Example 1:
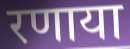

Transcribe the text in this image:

रणाया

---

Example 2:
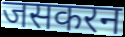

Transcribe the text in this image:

जसकरन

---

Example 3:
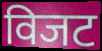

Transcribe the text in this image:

विजट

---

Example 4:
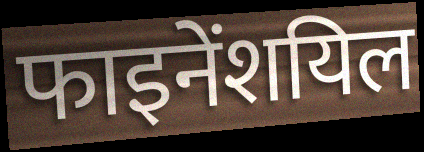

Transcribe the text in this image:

फाइनेंशयिल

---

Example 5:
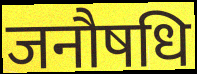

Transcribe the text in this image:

जनौषधि